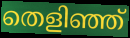
തെളിഞ്ഞ്